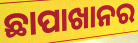
ଛାପାଖାନର